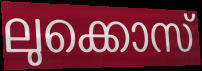
ലുക്കൊസ്